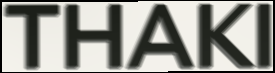
THAKI